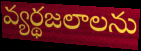
వ్యర్థజలాలను